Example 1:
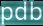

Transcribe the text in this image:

pdb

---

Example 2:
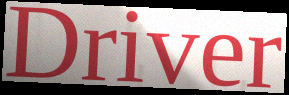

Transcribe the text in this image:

Driver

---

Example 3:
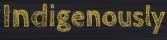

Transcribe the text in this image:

Indigenously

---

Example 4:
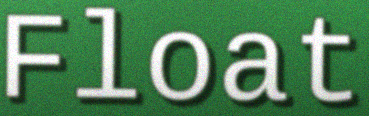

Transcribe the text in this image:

Float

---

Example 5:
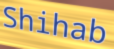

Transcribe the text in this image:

Shihab